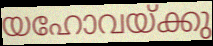
യഹോവയ്ക്കു